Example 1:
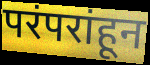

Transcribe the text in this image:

परंपरांहून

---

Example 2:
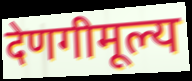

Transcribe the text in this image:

देणगीमूल्य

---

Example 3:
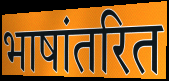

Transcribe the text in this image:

भाषांतरित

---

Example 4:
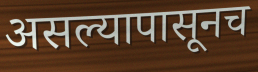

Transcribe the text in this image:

असल्यापासूनच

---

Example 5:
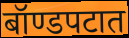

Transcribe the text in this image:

बॉण्डपटात